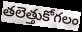
తలెత్తుకోగలం